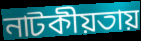
নাটকীয়তায়